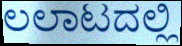
ಲಲಾಟದಲ್ಲಿ